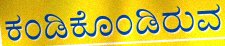
ಕಂಡಿಕೊಂಡಿರುವ